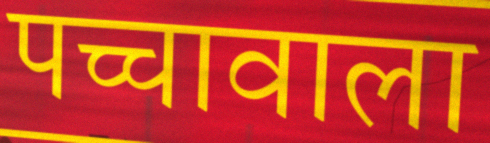
पच्चावाला